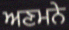
ਅਣਮਨੇ